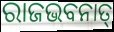
ରାଜଭବନାତ୍